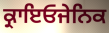
ਕ੍ਰਾਇਓਜੇਨਿਕ